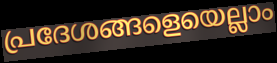
പ്രദേശങ്ങളെയെല്ലാം